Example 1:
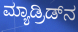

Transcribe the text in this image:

ಮ್ಯಾಡ್ರಿಡ್‌ನ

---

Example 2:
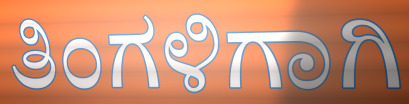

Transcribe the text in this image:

ತಿಂಗಳಿಗಾಗಿ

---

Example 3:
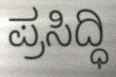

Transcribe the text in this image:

ಪ್ರಸಿದ್ಧಿ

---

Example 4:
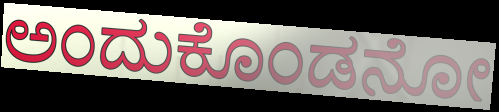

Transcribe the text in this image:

ಅಂದುಕೊಂಡನೋ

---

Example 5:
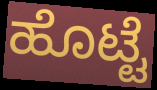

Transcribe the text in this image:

ಹೊಟ್ಟೆ